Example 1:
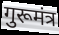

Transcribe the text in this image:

गुरूमंत्र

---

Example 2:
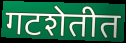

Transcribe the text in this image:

गटशेतीत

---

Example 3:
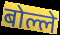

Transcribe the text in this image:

बोल्ले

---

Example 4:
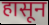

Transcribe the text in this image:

हासून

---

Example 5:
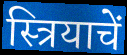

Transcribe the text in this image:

स्त्रियाचें